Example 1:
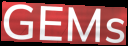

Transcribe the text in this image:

GEMs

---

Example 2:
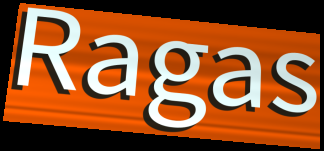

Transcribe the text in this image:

Ragas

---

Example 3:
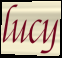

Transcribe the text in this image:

lucy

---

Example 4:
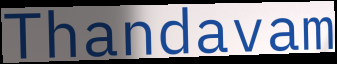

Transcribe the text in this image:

Thandavam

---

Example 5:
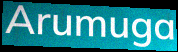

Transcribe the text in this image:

Arumuga